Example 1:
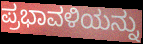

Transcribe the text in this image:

ಪ್ರಭಾವಳಿಯನ್ನು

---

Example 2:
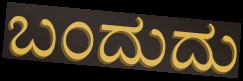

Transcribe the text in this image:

ಬಂದುದು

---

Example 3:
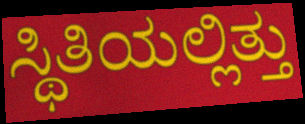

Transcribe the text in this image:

ಸ್ಥಿತಿಯಲ್ಲಿತ್ತು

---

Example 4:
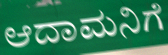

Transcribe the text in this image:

ಆದಾಮನಿಗೆ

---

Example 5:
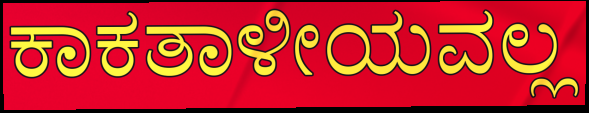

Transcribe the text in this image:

ಕಾಕತಾಳೀಯವಲ್ಲ